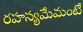
రహస్యమేమంటే